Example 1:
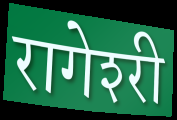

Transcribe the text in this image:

रागेश्री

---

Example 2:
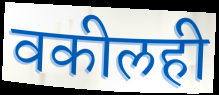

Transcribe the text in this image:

वकीलही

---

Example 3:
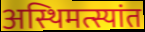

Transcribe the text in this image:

अस्थिमत्स्यांत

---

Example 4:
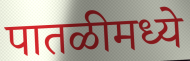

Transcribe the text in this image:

पातळीमध्ये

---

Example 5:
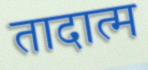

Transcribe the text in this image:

तादात्म